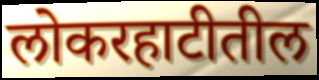
लोकरहाटीतील